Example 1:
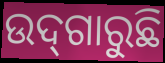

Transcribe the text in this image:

ଉଦ୍‌ଗାରୁଛି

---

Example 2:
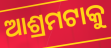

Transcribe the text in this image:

ଆଶ୍ରମଟାକୁ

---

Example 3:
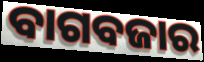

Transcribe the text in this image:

ବାଗବଜାର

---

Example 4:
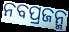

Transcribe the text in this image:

ନବପ୍ରଜନ୍ମ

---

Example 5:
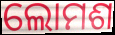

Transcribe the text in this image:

ଲୋମଶ